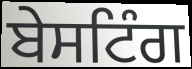
ਬੇਸਟਿੰਗ